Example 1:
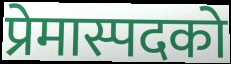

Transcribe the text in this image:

प्रेमास्पदको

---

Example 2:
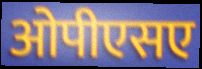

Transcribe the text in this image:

ओपीएसए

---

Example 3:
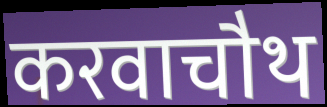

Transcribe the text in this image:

करवाचौथ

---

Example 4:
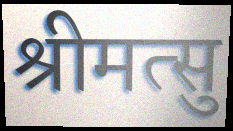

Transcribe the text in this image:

श्रीमत्सु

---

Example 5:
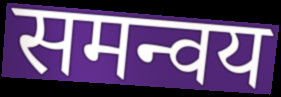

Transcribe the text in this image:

समन्वय